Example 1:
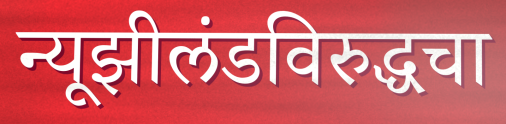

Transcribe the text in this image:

न्यूझीलंडविरुद्धचा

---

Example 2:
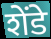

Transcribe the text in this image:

शेंडे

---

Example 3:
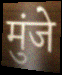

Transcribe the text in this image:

मुंजे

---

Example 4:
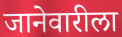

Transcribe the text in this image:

जानेवारीला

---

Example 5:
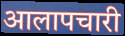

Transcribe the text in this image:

आलापचारी